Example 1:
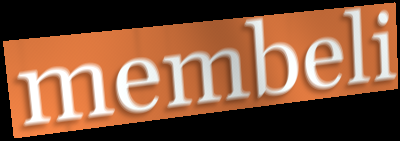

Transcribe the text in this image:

membeli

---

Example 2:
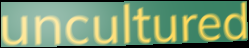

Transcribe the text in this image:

uncultured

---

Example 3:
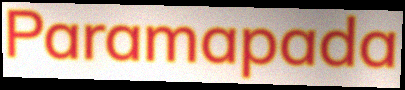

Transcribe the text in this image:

Paramapada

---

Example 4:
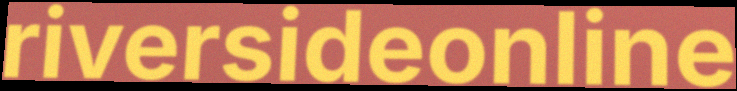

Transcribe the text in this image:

riversideonline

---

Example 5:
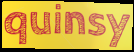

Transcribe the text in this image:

quinsy